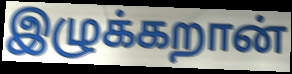
இழுக்கறான்